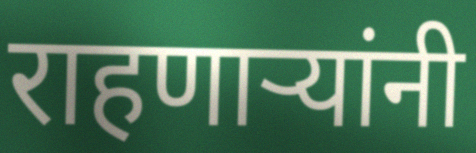
राहणार्‍यांनी